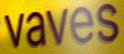
vaves